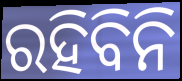
ରହିବିନି